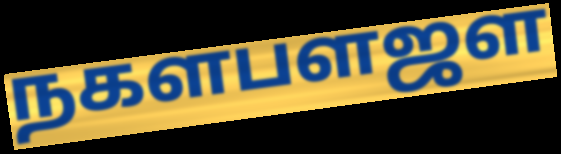
நகளபளஜள